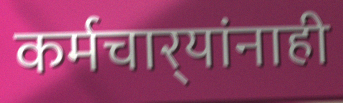
कर्मचार्‍यांनाही